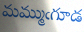
మమ్ముఁగూడ